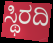
ಸ್ಥಿರದಿ